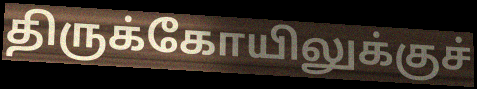
திருக்கோயிலுக்குச்